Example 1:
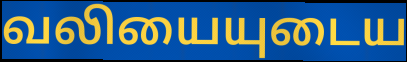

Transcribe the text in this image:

வலியையுடைய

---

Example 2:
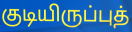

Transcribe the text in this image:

குடியிருப்புத்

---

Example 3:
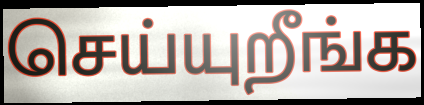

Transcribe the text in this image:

செய்யுறீங்க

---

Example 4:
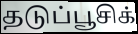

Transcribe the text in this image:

தடுப்பூசிக்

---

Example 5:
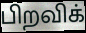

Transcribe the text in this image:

பிறவிக்